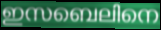
ഇസബെലിനെ